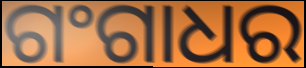
ଗଂଗାଧର